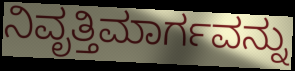
ನಿವೃತ್ತಿಮಾರ್ಗವನ್ನು